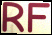
RF